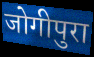
जोगीपुरा